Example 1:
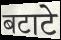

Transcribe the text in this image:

बटाटे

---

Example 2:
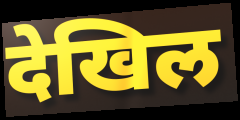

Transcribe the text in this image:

देखिल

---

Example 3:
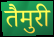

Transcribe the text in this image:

तैमुरी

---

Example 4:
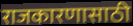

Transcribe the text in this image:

राजकारणासाठी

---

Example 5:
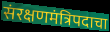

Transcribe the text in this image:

संरक्षणमंत्रिपदाचा